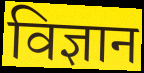
विज्ञान